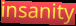
insanity